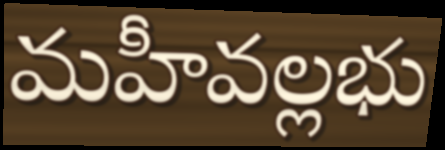
మహీవల్లభు